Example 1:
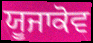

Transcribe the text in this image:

ਯੂਜਾਕੋਵ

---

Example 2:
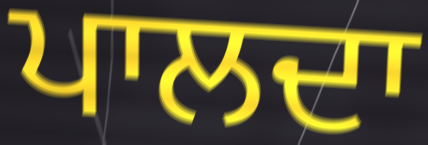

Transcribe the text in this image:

ਪਾਲਦਾ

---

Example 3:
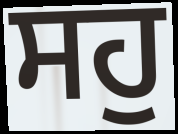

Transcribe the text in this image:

ਸਹੁ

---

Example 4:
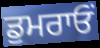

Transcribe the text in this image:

ਡੁਮਰਾਓਂ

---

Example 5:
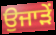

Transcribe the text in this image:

ਉਜਾੜੇਂ